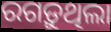
ରଗଡ଼ୁଥିଲା